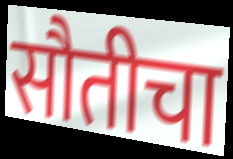
सौतीचा